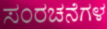
ಸಂರಚನೆಗಳ